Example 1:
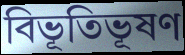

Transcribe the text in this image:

বিভূতিভূষণ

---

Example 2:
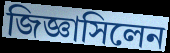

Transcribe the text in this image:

জিজ্ঞাসিলেন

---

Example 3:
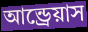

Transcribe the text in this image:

আন্ড্রেয়াস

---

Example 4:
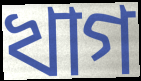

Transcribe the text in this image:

খাগ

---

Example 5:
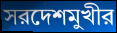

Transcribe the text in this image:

সরদেশমুখীর